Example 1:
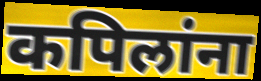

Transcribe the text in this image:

कपिलांना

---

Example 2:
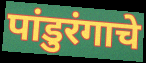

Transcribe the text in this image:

पांडुरंगाचे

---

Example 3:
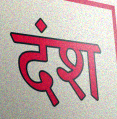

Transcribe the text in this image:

दंश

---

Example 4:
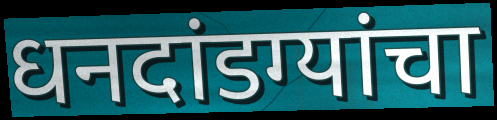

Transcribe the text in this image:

धनदांडग्यांचा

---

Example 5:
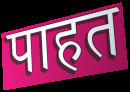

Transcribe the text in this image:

पाहत